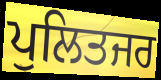
ਪੁਲਿਤਜਰ